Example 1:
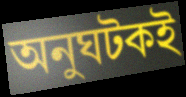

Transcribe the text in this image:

অনুঘটকই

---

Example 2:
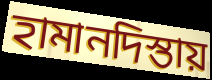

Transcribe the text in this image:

হামানদিস্তায়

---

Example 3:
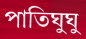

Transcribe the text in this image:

পাতিঘুঘু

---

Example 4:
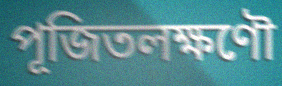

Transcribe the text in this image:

পূজিতলক্ষণৌ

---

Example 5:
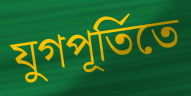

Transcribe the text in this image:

যুগপূর্তিতে